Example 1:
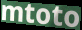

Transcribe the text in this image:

mtoto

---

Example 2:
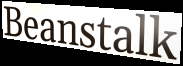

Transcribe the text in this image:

Beanstalk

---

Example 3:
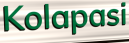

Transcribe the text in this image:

Kolapasi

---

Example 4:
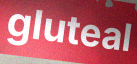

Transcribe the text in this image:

gluteal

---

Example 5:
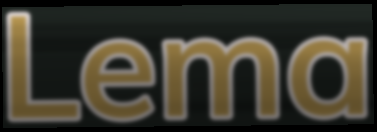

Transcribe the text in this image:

Lema